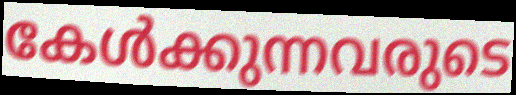
കേൾക്കുന്നവരുടെ